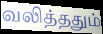
வலித்ததும்